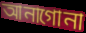
আনাগোনা